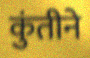
कुंतीने